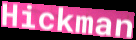
Hickman